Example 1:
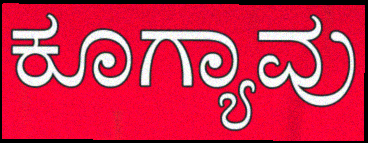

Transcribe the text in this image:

ಕೂಗ್ಯಾವು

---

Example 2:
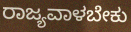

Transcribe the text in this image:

ರಾಜ್ಯವಾಳಬೇಕು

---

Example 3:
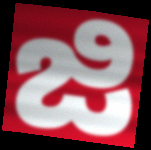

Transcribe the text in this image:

ಜಿ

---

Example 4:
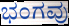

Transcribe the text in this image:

ಭಂಗವು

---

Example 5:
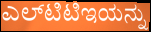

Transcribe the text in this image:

ಎಲ್‌ಟಿಟಿಇಯನ್ನು